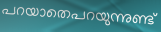
പറയാതെപറയുന്നുണ്ട്